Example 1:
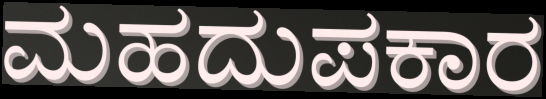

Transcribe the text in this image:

ಮಹದುಪಕಾರ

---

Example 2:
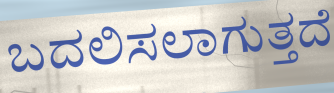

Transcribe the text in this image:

ಬದಲಿಸಲಾಗುತ್ತದೆ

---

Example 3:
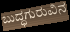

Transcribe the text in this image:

ಬುದ್ಧಗುರುವಿನ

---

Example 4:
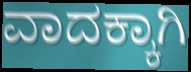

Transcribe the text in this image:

ವಾದಕ್ಕಾಗಿ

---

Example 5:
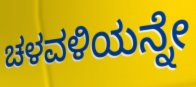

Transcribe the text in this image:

ಚಳವಳಿಯನ್ನೇ